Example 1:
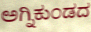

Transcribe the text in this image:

ಅಗ್ನಿಕುಂಡದ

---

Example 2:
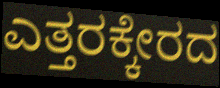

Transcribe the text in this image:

ಎತ್ತರಕ್ಕೇರದ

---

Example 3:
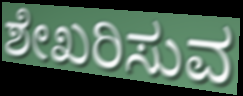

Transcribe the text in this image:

ಶೇಖರಿಸುವ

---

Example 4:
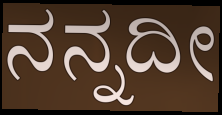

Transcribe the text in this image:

ನನ್ನದೀ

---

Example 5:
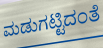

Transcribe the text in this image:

ಮಡುಗಟ್ಟಿದಂತೆ